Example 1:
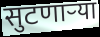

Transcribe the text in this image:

सुटणाऱ्या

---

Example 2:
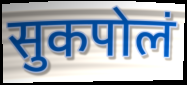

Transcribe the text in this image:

सुकपोलं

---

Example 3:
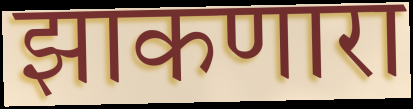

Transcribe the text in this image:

झाकणारा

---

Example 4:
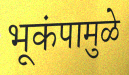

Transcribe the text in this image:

भूकंपामुळे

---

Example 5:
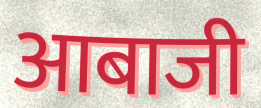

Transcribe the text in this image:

आबाजी